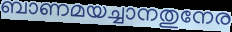
ബാണമയച്ചാനതുനേര